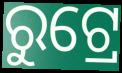
ରୁଟ୍ରେ